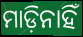
ମାଡ଼ିନାହିଁ